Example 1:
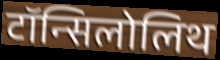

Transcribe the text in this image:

टॉन्सिलोलिथ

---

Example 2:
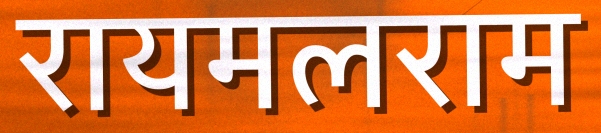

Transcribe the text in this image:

रायमलराम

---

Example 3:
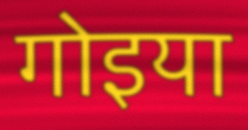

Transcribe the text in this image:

गोइया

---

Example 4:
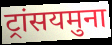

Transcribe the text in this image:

ट्रांसयमुना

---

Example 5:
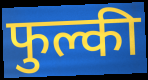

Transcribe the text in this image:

फुल्की